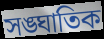
সঙ্ঘাতিক